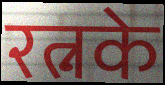
रत्नके